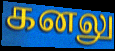
கனலு